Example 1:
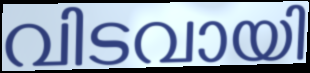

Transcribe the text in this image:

വിടവായി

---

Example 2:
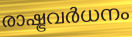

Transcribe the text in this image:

രാഷ്ട്രവർധനം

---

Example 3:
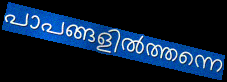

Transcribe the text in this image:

പാപങ്ങളിൽത്തന്നെ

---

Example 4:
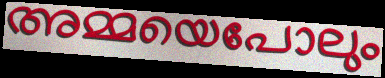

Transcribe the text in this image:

അമ്മയെപോലും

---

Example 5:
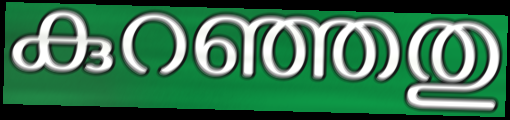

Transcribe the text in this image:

കുറഞ്ഞതു